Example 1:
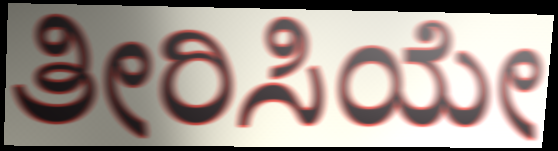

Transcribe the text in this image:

ತೀರಿಸಿಯೇ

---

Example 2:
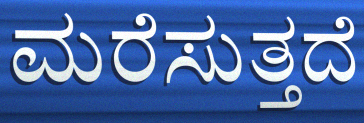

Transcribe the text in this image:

ಮರೆಸುತ್ತದೆ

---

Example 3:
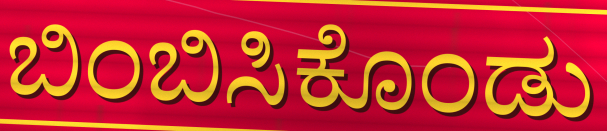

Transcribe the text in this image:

ಬಿಂಬಿಸಿಕೊಂಡು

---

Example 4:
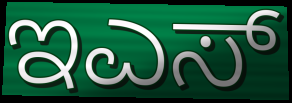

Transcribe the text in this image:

ಇಎಸ್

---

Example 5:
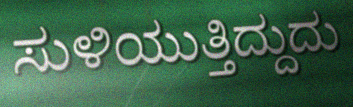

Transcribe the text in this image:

ಸುಳಿಯುತ್ತಿದ್ದುದು